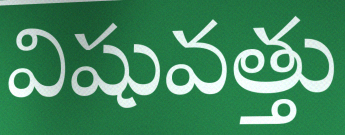
విషువత్తు